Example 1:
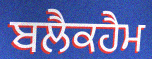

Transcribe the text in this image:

ਬਲੈਕਹੈਮ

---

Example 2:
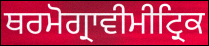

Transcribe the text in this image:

ਥਰਮੋਗ੍ਰਾਵੀਮੀਟ੍ਰਿਕ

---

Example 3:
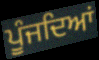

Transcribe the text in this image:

ਪੂੰਜਦਿਆਂ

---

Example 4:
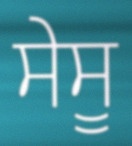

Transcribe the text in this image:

ਸੇਸੂ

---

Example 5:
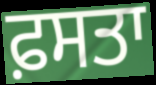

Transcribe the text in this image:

ਫ਼ਸਤਾ